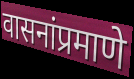
वासनांप्रमाणे